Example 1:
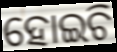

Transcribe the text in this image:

ହୋଇଚି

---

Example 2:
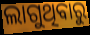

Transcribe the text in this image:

ଲାଗୁଥିବାରୁ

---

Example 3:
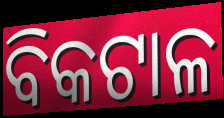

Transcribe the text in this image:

ବିକଟାଳ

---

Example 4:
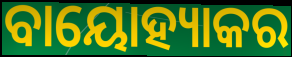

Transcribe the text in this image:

ବାୟୋହ୍ୟାକର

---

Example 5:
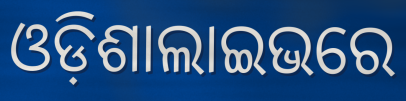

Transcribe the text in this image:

ଓଡ଼ିଶାଲାଇଭରେ